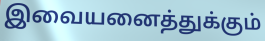
இவையனைத்துக்கும்